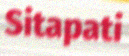
Sitapati